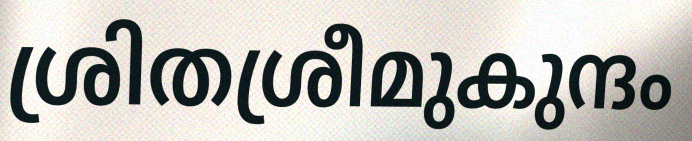
ശ്രിതശ്രീമുകുന്ദം